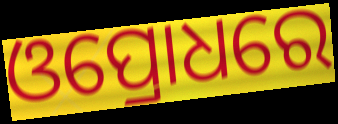
ଓପ୍ରୋଧରେ